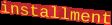
installment